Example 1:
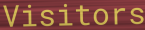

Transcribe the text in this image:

Visitors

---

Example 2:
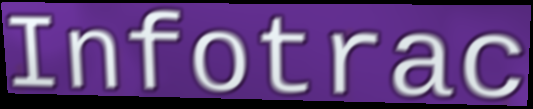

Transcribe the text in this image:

Infotrac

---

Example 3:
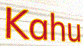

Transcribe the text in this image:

Kahu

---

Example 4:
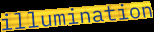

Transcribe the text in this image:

illumination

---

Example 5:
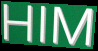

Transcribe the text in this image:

HIM